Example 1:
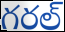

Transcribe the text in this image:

గరల్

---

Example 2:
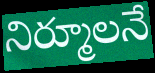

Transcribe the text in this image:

నిర్మూలనే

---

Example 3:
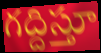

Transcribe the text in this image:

గద్దిస్తూ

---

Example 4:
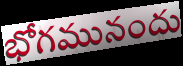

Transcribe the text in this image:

భోగమునందు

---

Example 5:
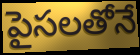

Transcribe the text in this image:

పైసలతోనే